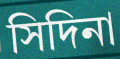
সিদিনা